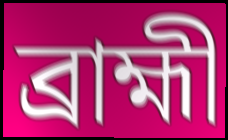
ব্ৰাহ্মী